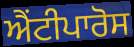
ਐਂਟੀਪਾਰੋਸ